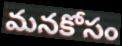
మనకోసం